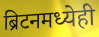
ब्रिटनमध्येही